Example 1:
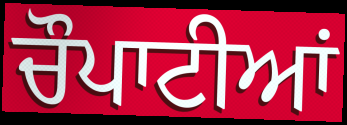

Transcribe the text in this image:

ਚੌਪਾਟੀਆਂ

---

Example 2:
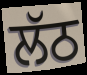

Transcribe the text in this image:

ਲੱਠ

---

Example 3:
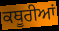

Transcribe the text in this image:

ਕਥੂਰੀਆਂ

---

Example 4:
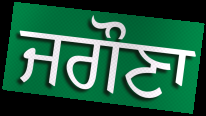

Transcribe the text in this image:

ਜਗੌਣਾ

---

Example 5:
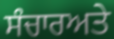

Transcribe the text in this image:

ਸੰਚਾਰਅਤੇ